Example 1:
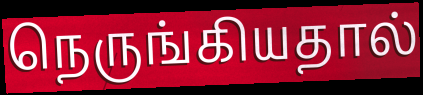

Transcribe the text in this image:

நெருங்கியதால்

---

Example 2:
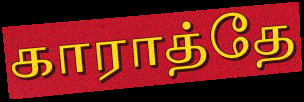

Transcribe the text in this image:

காராத்தே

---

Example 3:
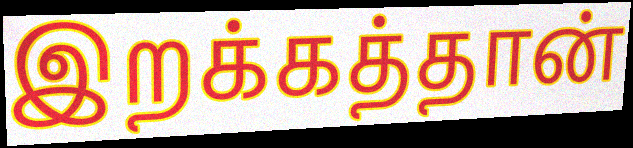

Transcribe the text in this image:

இறக்கத்தான்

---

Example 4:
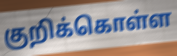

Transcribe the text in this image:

குறிக்கொள்ள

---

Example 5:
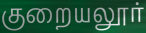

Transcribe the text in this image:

குறையலூர்